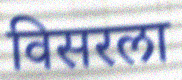
विसरला